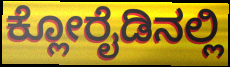
ಕ್ಲೋರೈಡಿನಲ್ಲಿ